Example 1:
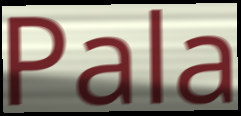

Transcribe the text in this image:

Pala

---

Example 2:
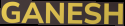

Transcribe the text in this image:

GANESH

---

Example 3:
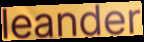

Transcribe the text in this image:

leander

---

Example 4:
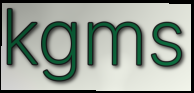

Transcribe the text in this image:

kgms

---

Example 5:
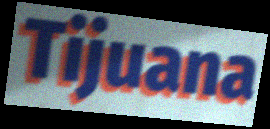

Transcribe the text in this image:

Tijuana